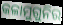
କଳାମୁଗୁନିର